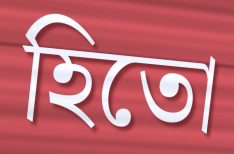
হিতো